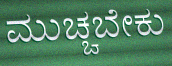
ಮುಚ್ಚಬೇಕು